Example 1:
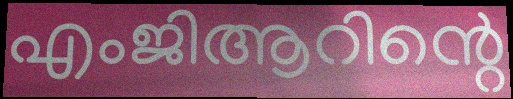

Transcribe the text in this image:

എംജിആറിന്റെ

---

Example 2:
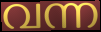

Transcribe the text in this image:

വന്ന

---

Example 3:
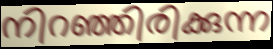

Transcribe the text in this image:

നിറഞ്ഞിരിക്കുന്ന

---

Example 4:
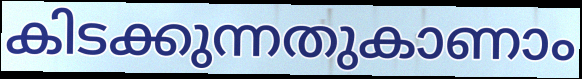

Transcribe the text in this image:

കിടക്കുന്നതുകാണാം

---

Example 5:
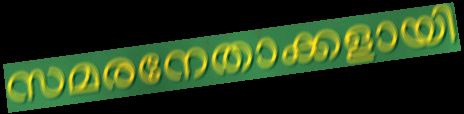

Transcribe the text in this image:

സമരനേതാക്കളായി